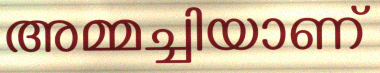
അമ്മച്ചിയാണ്